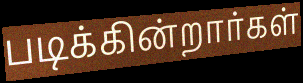
படிக்கின்றார்கள்